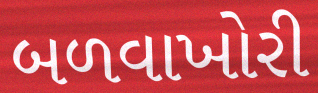
બળવાખોરી